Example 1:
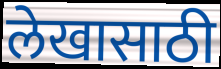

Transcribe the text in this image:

लेखासाठी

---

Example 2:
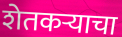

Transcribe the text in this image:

शेतकऱ्याचा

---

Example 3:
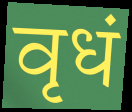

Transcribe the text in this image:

वृधं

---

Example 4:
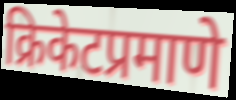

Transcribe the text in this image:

क्रिकेटप्रमाणे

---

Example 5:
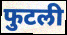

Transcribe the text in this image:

फुटली